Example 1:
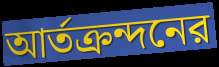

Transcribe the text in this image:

আর্তক্রন্দনের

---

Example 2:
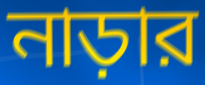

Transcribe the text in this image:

নাড়ার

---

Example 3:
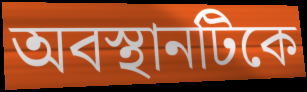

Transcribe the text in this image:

অবস্থানটিকে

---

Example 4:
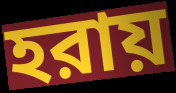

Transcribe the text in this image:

হরায়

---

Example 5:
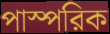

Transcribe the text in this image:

পাস্পরিক